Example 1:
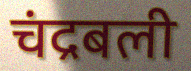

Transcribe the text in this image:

चंद्रबली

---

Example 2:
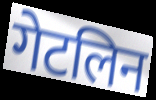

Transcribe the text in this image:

गेटलिन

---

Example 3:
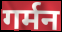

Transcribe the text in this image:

गर्मन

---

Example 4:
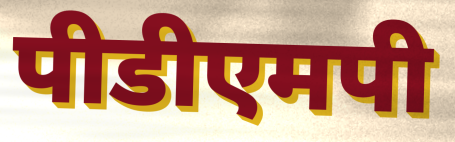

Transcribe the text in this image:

पीडीएमपी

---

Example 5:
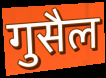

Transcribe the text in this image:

गुसैल